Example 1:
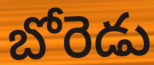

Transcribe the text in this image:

బోరెడు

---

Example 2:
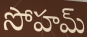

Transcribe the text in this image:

సోహమ్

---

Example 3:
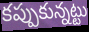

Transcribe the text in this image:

కప్పుకున్నట్టు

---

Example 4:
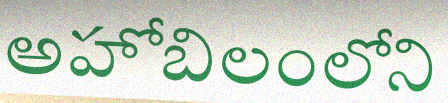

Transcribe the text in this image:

అహోబిలంలోని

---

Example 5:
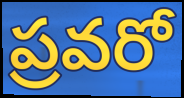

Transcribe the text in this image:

ప్రవరో